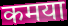
कमया